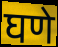
घणे